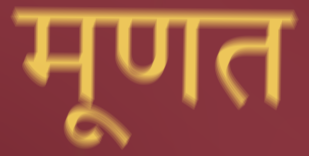
मूणत